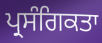
ਪ੍ਰਸੰਗਿਕਤਾ